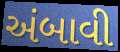
અંબાવી